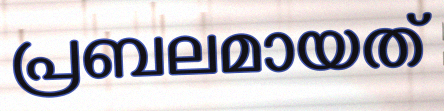
പ്രബലമായത്